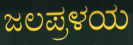
ಜಲಪ್ರಳಯ